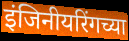
इंजिनीयरिंगच्या